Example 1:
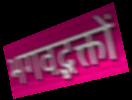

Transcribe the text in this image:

भगवद्भक्तों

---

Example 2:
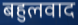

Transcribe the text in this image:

बहुलवाद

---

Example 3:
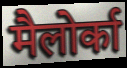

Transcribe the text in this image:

मैलोर्का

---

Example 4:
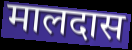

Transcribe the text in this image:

मालदास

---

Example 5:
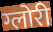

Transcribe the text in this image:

ग्लोरी